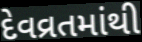
દેવવ્રતમાંથી